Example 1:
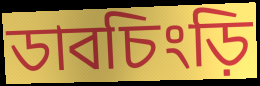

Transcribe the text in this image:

ডাবচিংড়ি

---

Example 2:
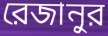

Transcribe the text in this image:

রেজানুর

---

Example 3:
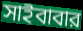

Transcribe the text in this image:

সাইবাবার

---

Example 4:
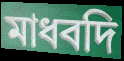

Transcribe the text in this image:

মাধবদি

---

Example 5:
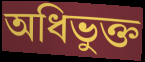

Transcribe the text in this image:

অধিভুক্ত